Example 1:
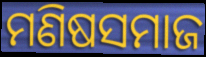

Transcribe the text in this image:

ମଣିଷସମାଜ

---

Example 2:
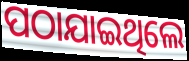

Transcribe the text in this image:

ପଠାଯାଇଥିଲେ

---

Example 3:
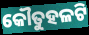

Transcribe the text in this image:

କୌତୁହଳଟି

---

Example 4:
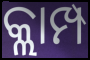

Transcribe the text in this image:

କ୍ଲାମ୍ପ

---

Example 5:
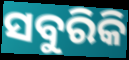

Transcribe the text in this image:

ସବୁରିକି